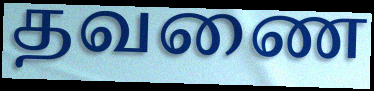
தவணை